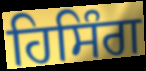
ਹਿਸਿੰਗ